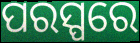
ପରସ୍ପରେ